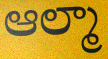
ఆల్మా